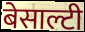
बेसाल्टी